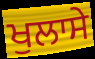
ਖੁਲਾਸੇ